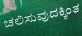
ಚಲಿಸುವುದಕ್ಕಿಂತ